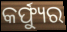
କର୍ଫ୍ୟୁର